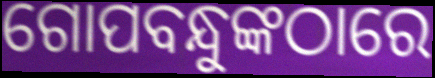
ଗୋପବନ୍ଧୁଙ୍କଠାରେ